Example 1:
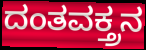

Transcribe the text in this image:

ದಂತವಕ್ತ್ರನ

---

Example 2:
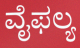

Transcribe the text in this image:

ವೈಫಲ್ಯ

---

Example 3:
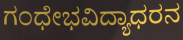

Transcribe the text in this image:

ಗಂಧೇಭವಿದ್ಯಾಧರನ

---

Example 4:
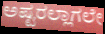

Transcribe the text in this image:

ಅಷ್ಟರಲ್ಲಾಗಲೇ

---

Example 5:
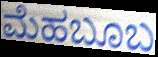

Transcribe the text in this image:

ಮೆಹಬೂಬ